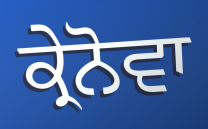
ਕ੍ਰੇਨੋਵਾ